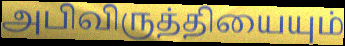
அபிவிருத்தியையும்